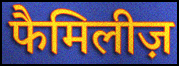
फैमिलीज़